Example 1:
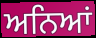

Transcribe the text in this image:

ਅਨਿਆਂ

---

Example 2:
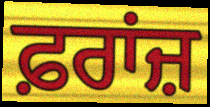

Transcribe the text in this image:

ਫ਼ਰਾਂਜ਼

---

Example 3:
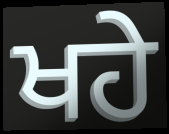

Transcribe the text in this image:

ਖਹੇ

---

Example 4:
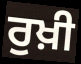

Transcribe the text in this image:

ਰੁਖ਼ੀ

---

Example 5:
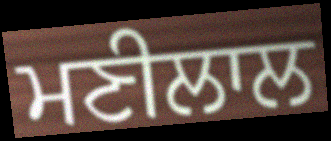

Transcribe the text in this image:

ਮਣੀਲਾਲ